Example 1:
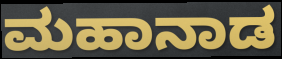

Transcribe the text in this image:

ಮಹಾನಾಡ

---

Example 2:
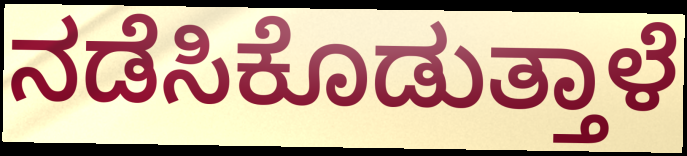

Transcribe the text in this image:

ನಡೆಸಿಕೊಡುತ್ತಾಳೆ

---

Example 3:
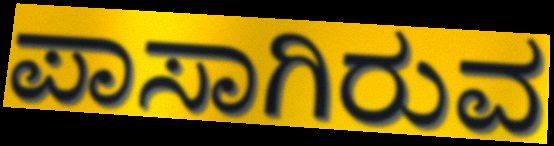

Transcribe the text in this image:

ಪಾಸಾಗಿರುವ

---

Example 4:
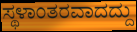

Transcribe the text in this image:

ಸ್ಥಳಾಂತರವಾದದ್ದು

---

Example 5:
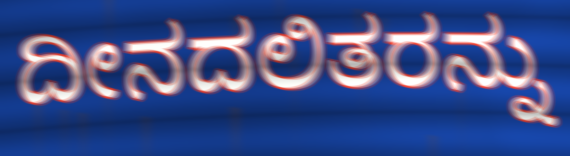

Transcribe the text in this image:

ದೀನದಲಿತರನ್ನು